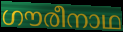
ഗൗരീനാഥ